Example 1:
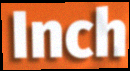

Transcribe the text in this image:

Inch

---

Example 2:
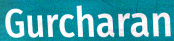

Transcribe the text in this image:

Gurcharan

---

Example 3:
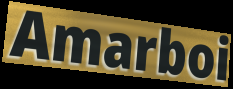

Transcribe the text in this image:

Amarboi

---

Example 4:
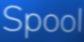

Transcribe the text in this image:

Spool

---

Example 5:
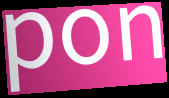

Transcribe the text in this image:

pon